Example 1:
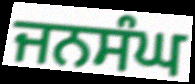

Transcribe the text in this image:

ਜਨਸੰਘ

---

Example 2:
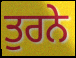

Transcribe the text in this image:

ਤੁਰਨੇ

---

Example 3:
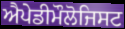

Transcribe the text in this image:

ਐਪੇਡੀਮੌਲੋਜਿਸਟ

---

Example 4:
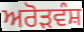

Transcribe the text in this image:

ਅਰੋੜਵੰਸ਼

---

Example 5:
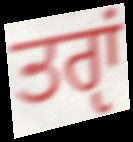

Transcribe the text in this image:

ਤਰੵਾਂ